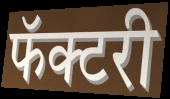
फॅक्टरी